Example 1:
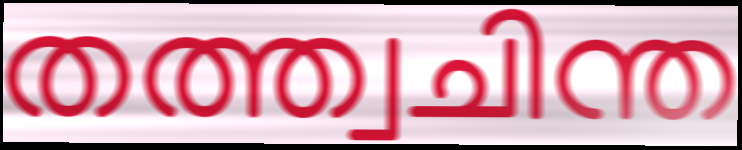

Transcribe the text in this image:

തത്ത്വചിന്ത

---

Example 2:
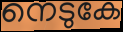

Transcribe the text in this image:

നെടുകേ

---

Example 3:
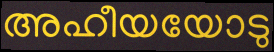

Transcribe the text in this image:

അഹീയയോടു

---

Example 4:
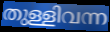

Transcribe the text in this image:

തുള്ളിവന്ന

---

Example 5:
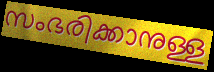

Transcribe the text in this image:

സംഭരിക്കാനുള്ള